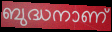
ബുദ്ധനാണ്